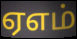
ஏஎம்